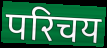
परिचय